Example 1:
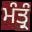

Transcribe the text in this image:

ਮੰਤ੍ਰੰ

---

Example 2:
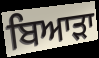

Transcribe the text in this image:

ਬਿਆੜਾ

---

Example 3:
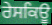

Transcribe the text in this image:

ਰੇਸਕਿਊ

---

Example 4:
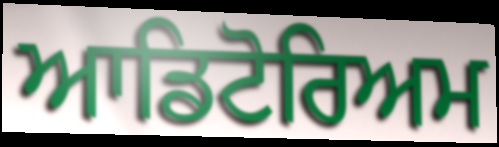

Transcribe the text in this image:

ਆਡਿਟੋਰਿਅਮ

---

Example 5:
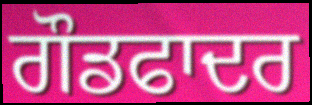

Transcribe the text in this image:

ਗੌਡਫਾਦਰ